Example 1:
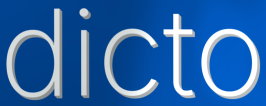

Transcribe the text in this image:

dicto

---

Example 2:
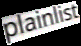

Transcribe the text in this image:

plainlist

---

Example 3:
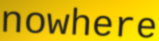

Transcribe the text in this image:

nowhere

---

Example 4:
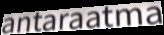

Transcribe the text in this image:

antaraatma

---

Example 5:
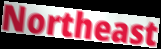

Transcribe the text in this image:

Northeast